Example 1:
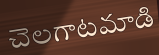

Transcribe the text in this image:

చెలగాటమాడి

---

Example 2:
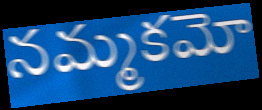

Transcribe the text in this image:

నమ్మకమో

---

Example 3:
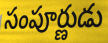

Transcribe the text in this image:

సంపూర్ణుడు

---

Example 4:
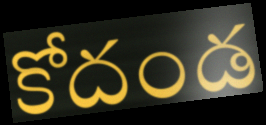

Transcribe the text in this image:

కోదండ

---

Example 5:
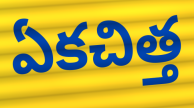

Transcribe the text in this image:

ఏకచిత్త